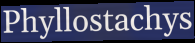
Phyllostachys